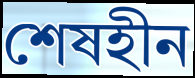
শেষহীন